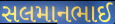
સલમાનભાઈ